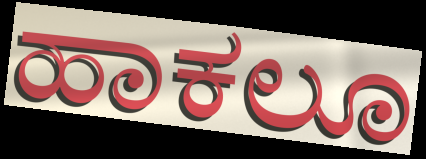
ಹಾಕಲೂ